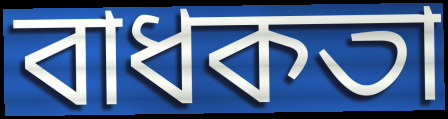
বাধকতা